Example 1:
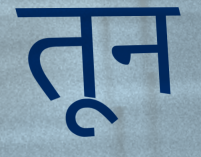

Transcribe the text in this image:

तून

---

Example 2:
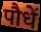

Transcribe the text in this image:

पौधें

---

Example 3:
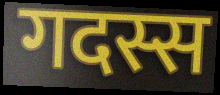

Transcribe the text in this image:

गदस्स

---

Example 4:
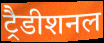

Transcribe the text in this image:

ट्रैडीशनल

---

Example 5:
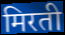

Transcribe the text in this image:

मिरती